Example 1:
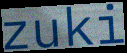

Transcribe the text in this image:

zuki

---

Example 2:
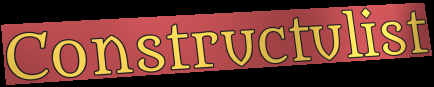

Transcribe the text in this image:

Constructulist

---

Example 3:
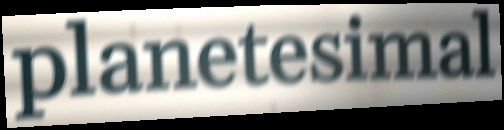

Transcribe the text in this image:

planetesimal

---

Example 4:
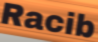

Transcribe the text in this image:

Racib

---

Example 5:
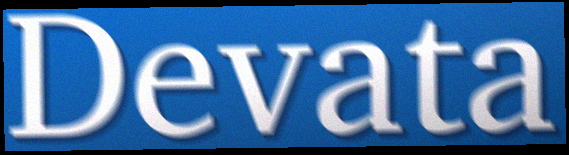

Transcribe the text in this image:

Devata